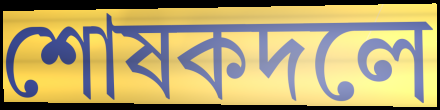
শোষকদলে